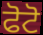
ਫੋਟੋ